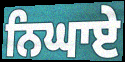
ਨਿਘਾਏ